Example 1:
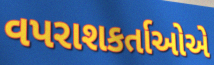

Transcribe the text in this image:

વપરાશકર્તાઓએ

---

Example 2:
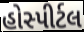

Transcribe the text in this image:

હોસ્પીર્ટલ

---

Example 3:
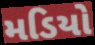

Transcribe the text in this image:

મડિયો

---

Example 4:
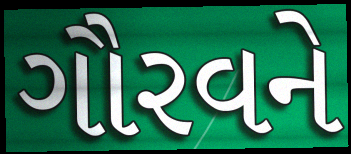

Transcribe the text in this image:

ગૌરવને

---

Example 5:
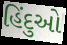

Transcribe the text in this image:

હિંદુઓ